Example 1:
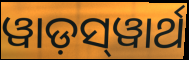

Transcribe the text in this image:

ୱାଡ଼ସ୍‌ୱାର୍ଥ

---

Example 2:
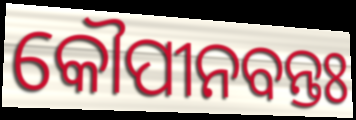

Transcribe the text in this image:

କୌପୀନବନ୍ତଃ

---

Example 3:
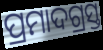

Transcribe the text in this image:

ପ୍ରମାଦଗ୍ରସ୍ତ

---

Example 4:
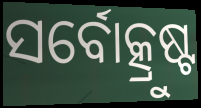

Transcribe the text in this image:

ସର୍ବୋତ୍କ୍ରୁଷ୍ଟ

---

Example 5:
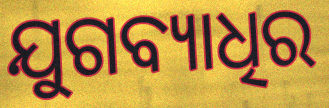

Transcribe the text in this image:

ଯୁଗବ୍ୟାଧିର